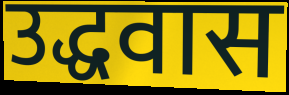
उद्धवास